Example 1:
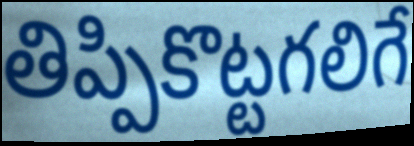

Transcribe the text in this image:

తిప్పికొట్టగలిగే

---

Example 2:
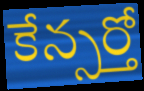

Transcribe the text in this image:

కేన్సర్తో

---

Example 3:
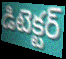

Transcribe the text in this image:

డిటెక్టర్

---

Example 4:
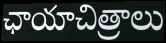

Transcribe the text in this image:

ఛాయాచిత్రాలు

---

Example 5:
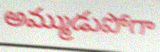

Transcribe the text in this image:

అమ్ముడుపోగా